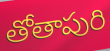
తోతాపురి